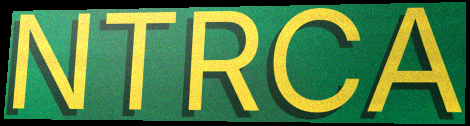
NTRCA